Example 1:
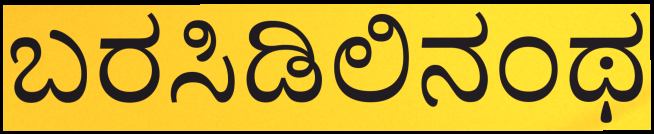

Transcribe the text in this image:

ಬರಸಿಡಿಲಿನಂಥ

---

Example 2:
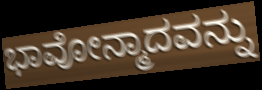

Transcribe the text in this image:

ಭಾವೋನ್ಮಾದವನ್ನು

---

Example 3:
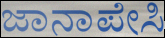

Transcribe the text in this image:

ಜಾನಾಪೇಸಿ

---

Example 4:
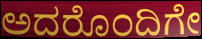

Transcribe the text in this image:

ಅದರೊಂದಿಗೇ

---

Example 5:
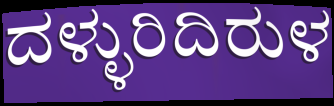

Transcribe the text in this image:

ದಳ್ಳುರಿದಿರುಳ